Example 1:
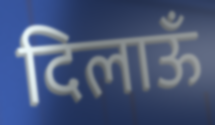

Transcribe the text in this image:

दिलाऊँ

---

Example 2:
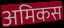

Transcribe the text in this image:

अमिकस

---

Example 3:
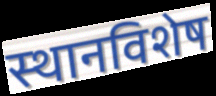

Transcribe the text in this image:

स्थानविशेष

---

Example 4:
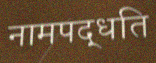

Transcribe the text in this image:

नामपद्धति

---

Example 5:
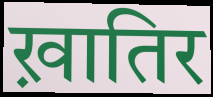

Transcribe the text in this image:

ख़ातिर